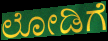
ಲೋಡಿಗೆ